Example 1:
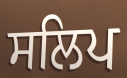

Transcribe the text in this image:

ਸਲਿਪ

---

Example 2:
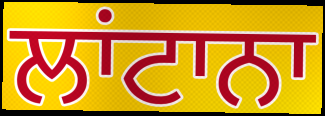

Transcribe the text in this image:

ਲਾਂਟਾਨਾ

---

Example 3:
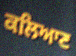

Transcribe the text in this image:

ਕਲਿਆਣ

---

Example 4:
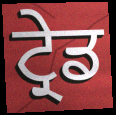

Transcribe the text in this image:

ਟ੍ਰੇਡ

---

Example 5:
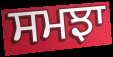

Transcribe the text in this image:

ਸਮਝਾ